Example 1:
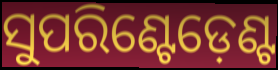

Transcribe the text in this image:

ସୁପରିଣ୍ଟେଡ଼େଣ୍ଟ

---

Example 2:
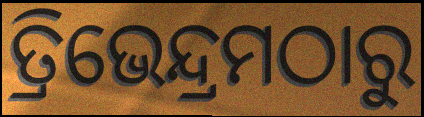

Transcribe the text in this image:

ତ୍ରିଭେନ୍ଦ୍ରମଠାରୁ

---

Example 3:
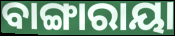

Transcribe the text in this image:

ବାଙ୍ଗାରାୟା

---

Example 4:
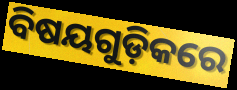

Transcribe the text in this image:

ବିଷୟଗୁଡ଼ିକରେ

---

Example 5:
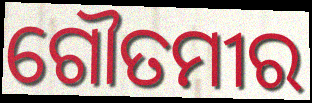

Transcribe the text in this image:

ଗୌତମୀର